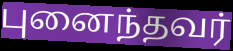
புனைந்தவர்